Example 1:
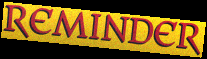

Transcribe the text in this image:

REMINDER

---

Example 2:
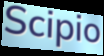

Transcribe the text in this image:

Scipio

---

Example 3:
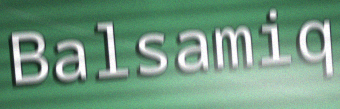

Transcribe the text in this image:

Balsamiq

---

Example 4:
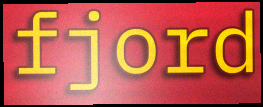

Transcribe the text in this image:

fjord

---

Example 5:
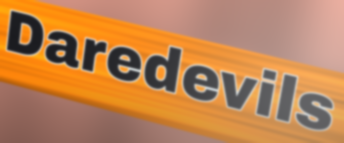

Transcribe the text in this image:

Daredevils